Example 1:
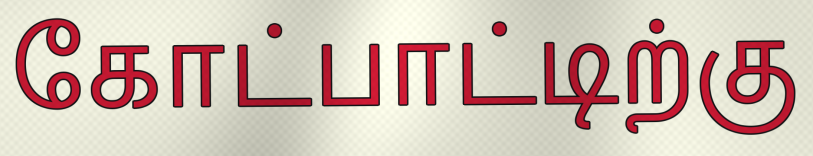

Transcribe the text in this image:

கோட்பாட்டிற்கு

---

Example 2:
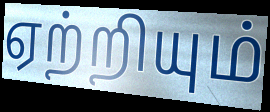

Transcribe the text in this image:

ஏற்றியும்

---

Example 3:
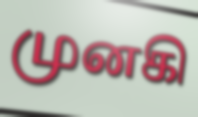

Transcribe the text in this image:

முனகி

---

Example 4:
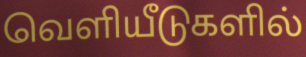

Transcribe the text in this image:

வெளியீடுகளில்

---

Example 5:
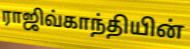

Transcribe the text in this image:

ராஜிவ்காந்தியின்